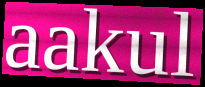
aakul